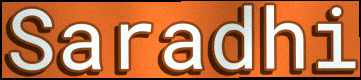
Saradhi